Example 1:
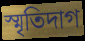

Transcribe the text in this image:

স্মৃতিদাগ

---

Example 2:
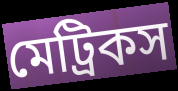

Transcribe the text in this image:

মেট্রিকস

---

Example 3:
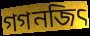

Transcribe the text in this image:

গগনজিৎ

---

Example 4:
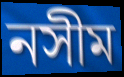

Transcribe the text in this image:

নসীম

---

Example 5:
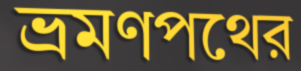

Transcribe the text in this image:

ভ্রমণপথের